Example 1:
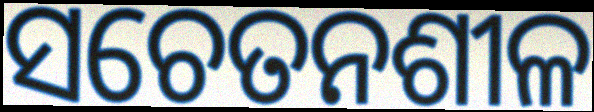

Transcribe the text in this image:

ସଚେତନଶୀଳ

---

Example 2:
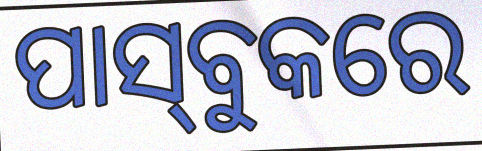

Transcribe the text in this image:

ପାସ୍‌ବୁକରେ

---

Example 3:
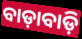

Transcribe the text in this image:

ବାଡ଼ାବାଡ଼ି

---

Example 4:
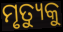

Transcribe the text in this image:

ମୃତ୍ୟୁକୁ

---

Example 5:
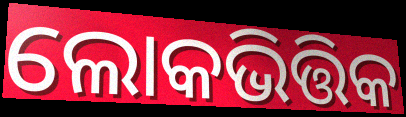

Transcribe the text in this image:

ଲୋକଭିତ୍ତିକ